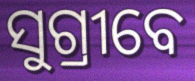
ସୁଗ୍ରୀବେ